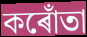
কৰোঁতা